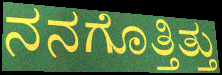
ನನಗೊತ್ತಿತ್ತು